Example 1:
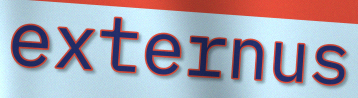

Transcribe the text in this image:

externus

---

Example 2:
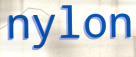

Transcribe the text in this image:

nylon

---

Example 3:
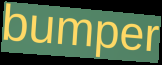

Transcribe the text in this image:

bumper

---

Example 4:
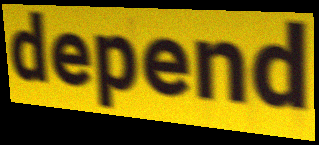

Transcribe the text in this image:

depend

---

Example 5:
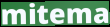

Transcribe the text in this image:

mitema